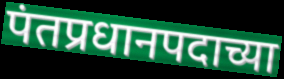
पंतप्रधानपदाच्या